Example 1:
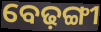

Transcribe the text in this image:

ବେଢ଼ଙ୍ଗୀ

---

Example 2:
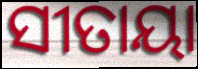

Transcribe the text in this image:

ସୀତାୟା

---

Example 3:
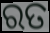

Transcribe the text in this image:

ରତ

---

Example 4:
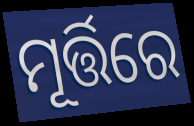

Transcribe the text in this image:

ମୂର୍ତ୍ତିରେ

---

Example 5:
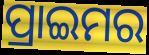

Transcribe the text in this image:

ପ୍ରାଇମର